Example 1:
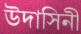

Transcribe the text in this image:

উদাসিনী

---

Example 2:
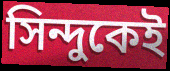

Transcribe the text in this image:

সিন্দুকেই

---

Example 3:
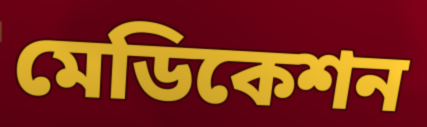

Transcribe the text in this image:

মেডিকেশন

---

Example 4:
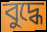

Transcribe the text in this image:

বুদ্ধে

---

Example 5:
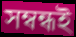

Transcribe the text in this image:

সম্বন্ধই